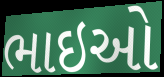
ભાઇઓ